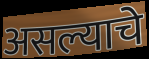
असल्‍याचे